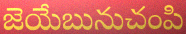
జెయేబునుచంపి